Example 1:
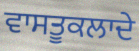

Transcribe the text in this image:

ਵਾਸਤੂਕਲਾਦੇ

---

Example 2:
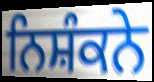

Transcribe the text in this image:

ਨਿਸ਼ੰਕਨੇ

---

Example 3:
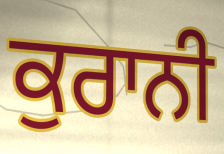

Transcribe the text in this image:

ਕੁਰਾਨੀ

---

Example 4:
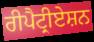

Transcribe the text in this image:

ਰੀਪੈਟ੍ਰੀਏਸ਼ਨ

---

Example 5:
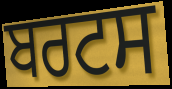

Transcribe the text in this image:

ਬਰਟਸ